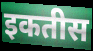
इकतीस